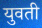
युवती